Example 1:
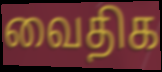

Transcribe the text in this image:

வைதிக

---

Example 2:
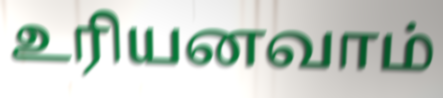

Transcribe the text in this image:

உரியனவாம்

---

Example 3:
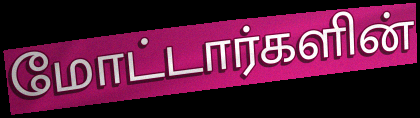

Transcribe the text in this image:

மோட்டார்களின்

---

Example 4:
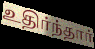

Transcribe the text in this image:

உதிர்ந்தார்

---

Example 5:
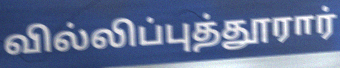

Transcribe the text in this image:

வில்லிப்புத்தூரார்